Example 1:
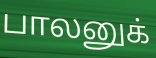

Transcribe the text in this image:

பாலனுக்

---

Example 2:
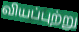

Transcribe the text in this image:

வியப்புற்று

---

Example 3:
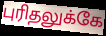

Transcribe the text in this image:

புரிதலுக்கே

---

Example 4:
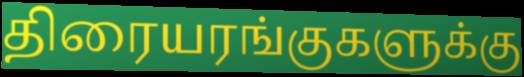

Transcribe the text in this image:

திரையரங்குகளுக்கு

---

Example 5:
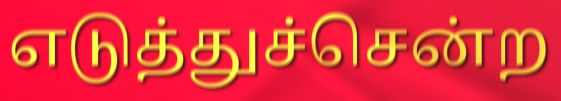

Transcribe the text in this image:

எடுத்துச்சென்ற